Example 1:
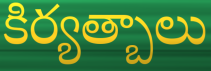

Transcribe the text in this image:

కిర్యత్బాలు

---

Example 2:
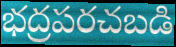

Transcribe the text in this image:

భద్రపరచబడి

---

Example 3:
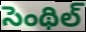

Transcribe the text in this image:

సెంథిల్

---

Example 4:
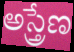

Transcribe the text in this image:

అస్త్రేణ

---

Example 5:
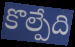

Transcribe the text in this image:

కొల్పేది